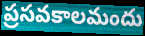
ప్రసవకాలమందు